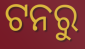
ଟନରୁ